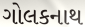
ગોલકનાથ